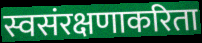
स्वसंरक्षणाकरिता